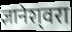
ज्ञानेश्वरा